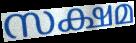
സക്ഷമ